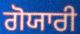
ਗੋਯਾਰੀ